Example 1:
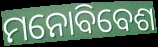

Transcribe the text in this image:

ମନୋବିବେଶ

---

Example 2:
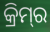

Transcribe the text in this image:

କ୍ରିମ୍‌ର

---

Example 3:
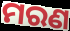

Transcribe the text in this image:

ମରଣ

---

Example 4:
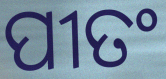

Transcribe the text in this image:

ପୀତଂ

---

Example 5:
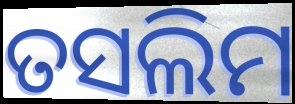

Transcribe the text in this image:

ତସଲିମ